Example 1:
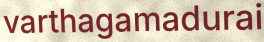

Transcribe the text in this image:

varthagamadurai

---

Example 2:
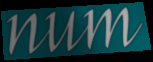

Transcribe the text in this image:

num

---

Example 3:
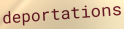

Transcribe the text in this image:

deportations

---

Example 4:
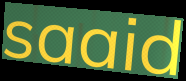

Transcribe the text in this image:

saaid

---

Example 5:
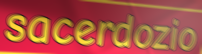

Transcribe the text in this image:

sacerdozio